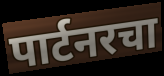
पार्टनरचा